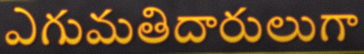
ఎగుమతిదారులుగా